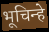
भूचिन्हे